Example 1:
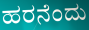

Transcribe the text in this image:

ಹರನೆಂದು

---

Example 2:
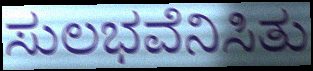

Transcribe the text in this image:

ಸುಲಭವೆನಿಸಿತು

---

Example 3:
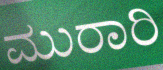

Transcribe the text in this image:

ಮುರಾರಿ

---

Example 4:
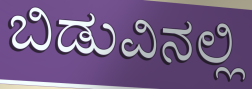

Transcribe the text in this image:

ಬಿಡುವಿನಲ್ಲಿ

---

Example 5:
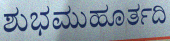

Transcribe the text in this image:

ಶುಭಮುಹೂರ್ತದಿ